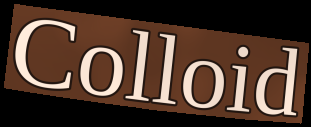
Colloid